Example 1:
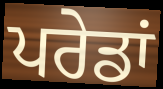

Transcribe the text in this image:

ਪਰੇਡਾਂ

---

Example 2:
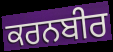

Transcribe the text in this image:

ਕਰਨਬੀਰ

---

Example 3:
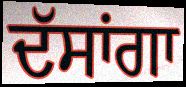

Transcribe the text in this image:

ਦੱਸਾਂਗਾ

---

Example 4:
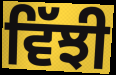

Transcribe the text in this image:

ਵਿੱਝੀ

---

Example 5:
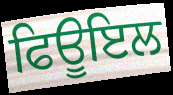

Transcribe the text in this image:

ਫਿਊਇਲ